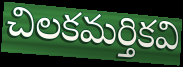
చిలకమర్తికవి